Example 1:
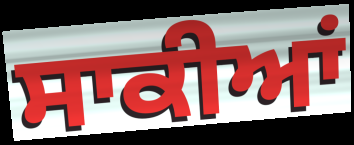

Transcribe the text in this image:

ਸਾਕੀਆਂ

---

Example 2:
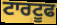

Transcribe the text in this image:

ਟਾਰਟੂਫ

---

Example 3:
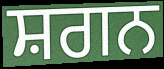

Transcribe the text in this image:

ਸ਼ਗਨ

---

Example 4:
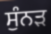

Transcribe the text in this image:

ਸੁੰਨੜ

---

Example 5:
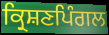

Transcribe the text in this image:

ਕ੍ਰਿਸ਼ਣਪਿੰਗਲ